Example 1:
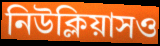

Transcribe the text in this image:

নিউক্লিয়াসও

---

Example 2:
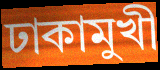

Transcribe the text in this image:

ঢাকামুখী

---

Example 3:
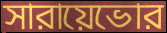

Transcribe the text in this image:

সারায়েভোর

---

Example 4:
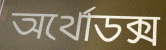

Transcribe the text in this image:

অর্থোডক্স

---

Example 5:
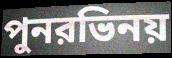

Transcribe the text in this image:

পুনরভিনয়